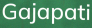
Gajapati